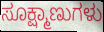
ಸೂಕ್ಷ್ಮಾಣುಗಳು